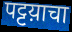
पट्टय़ाचा